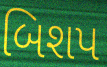
બિશપ